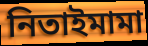
নিতাইমামা